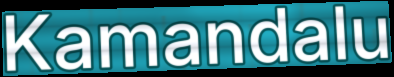
Kamandalu